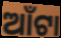
ଆଁଟା